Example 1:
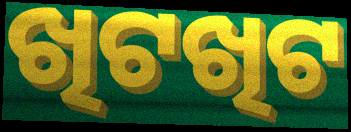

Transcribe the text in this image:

ଖିଟଖିଟ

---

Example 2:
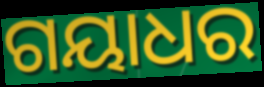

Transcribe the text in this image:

ଗୟାଧର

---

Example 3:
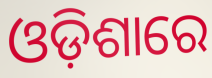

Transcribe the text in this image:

ଓଡ଼ିଶାରେ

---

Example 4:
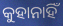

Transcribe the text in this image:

କୁହାନାହିଁ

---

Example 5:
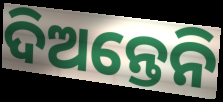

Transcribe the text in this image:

ଦିଅନ୍ତେନି